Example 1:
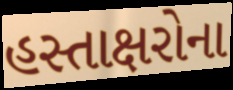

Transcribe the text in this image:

હસ્તાક્ષરોના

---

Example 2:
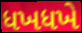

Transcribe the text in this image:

ધખધખે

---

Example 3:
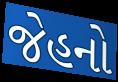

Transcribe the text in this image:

જેહનો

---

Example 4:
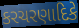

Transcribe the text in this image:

કરચરણાદિકે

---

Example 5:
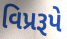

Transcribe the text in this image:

વિપ્રરૂપે